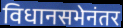
विधानसभेनंतर